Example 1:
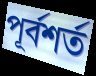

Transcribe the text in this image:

পূর্বশর্ত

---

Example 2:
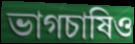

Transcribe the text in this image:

ভাগচাষিও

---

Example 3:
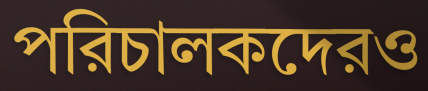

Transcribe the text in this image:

পরিচালকদেরও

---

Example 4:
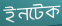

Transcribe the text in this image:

ইনটেক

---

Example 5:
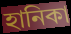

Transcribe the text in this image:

হানিকা